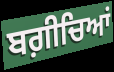
ਬਗ਼ੀਚਿਆਂ